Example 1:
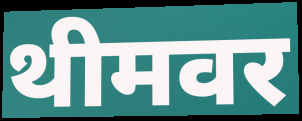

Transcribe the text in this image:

थीमवर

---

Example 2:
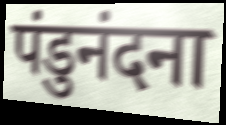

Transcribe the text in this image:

पंडुनंदना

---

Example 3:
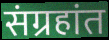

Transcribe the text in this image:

संग्रहांत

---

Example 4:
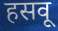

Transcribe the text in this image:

हसवू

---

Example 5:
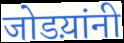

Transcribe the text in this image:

जोडय़ांनी